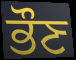
ਭੌਣ